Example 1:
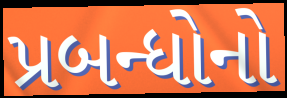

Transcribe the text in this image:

પ્રબન્ધોનો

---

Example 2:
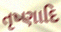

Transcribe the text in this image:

તૃષ્ણાદિ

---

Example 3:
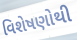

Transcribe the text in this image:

વિશેષણોથી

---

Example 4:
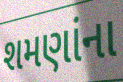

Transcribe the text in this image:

શમણાંના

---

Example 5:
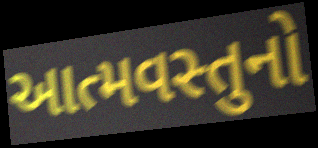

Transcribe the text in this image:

આત્મવસ્તુનો